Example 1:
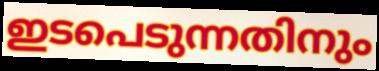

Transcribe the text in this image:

ഇടപെടുന്നതിനും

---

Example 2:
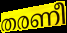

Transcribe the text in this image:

തരണീ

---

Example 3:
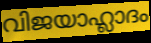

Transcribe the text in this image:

വിജയാഹ്ലാദം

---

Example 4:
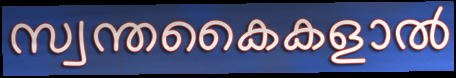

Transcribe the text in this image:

സ്വന്തകൈകളാൽ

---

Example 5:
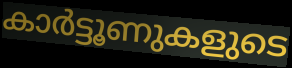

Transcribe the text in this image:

കാർട്ടൂണുകളുടെ